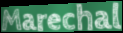
Marechal